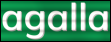
agalla